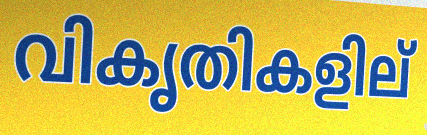
വികൃതികളില്